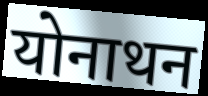
योनाथन